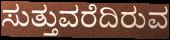
ಸುತ್ತುವರೆದಿರುವ